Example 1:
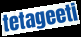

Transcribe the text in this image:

tetageeti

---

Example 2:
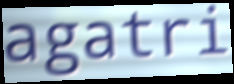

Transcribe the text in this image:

agatri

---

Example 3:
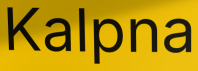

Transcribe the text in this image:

Kalpna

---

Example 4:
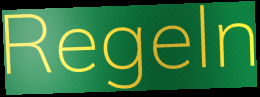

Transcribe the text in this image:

Regeln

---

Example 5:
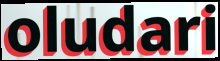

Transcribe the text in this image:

oludari